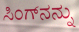
ಸಿಂಗ್‌ನನ್ನು